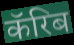
कॅरिब